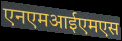
एनएमआईएमएस